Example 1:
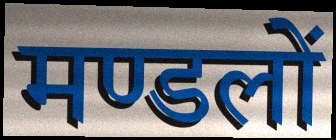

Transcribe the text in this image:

मण्‍डलों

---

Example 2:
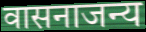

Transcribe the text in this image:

वासनाजन्य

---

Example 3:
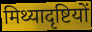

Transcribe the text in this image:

मिथ्यादृष्टियों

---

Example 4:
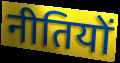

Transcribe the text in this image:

नीतियों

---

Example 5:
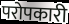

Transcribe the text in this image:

परोपकारी